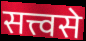
सत्त्वसे